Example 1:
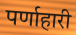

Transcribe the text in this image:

पर्णाहारी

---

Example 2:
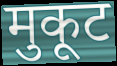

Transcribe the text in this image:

मुकूट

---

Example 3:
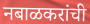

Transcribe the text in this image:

नबाळकरांची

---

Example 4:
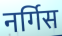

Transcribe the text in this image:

नर्गिस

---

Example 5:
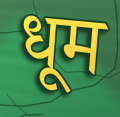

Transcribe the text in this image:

धूम